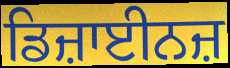
ਡਿਜ਼ਾਈਨਜ਼